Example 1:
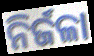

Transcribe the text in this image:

ନିର୍ଜଳା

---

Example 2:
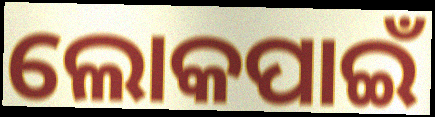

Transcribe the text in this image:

ଲୋକପାଇଁ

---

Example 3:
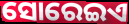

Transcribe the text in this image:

ସୋରେଇଏ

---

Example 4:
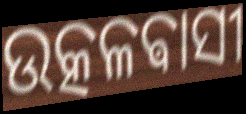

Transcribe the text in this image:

ଉତ୍କଳଵାସୀ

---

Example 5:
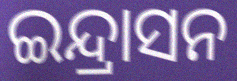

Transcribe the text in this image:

ଇନ୍ଦ୍ରାସନ